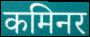
कमिनर